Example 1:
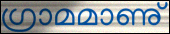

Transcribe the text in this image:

ഗ്രാമമാണു്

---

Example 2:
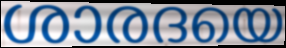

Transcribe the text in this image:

ശാരദയെ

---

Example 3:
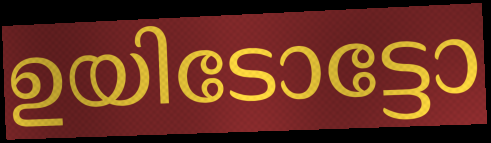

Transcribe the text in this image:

ഉയിടോട്ടോ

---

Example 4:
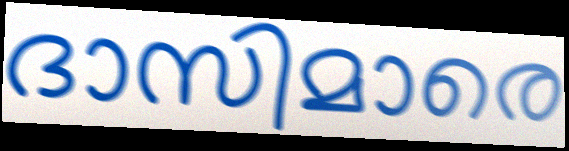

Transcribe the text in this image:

ദാസിമാരെ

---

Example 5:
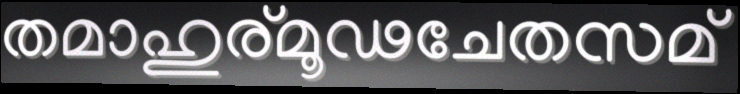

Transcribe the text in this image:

തമാഹുര്മൂഢചേതസമ്